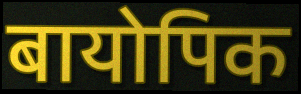
बायोपिक